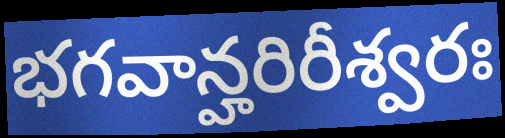
భగవాన్హరిరీశ్వరః